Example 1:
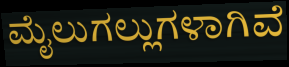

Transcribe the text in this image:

ಮೈಲುಗಲ್ಲುಗಳಾಗಿವೆ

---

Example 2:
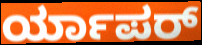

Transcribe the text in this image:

ರ್ಯಾಪರ್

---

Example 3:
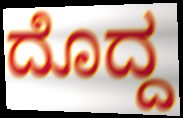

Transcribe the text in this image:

ದೊದ್ದ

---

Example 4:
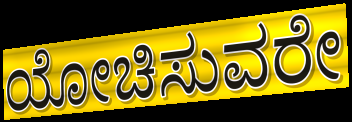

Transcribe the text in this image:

ಯೋಚಿಸುವರೇ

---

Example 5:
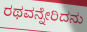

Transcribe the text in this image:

ರಥವನ್ನೇರಿದನು